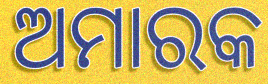
ଅମାରକ